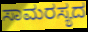
ಸಾಮರಸ್ಯದ